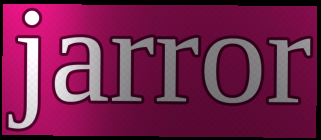
jarror